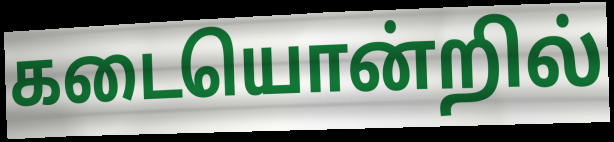
கடையொன்றில்